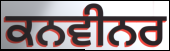
ਕਨਵੀਨਰ